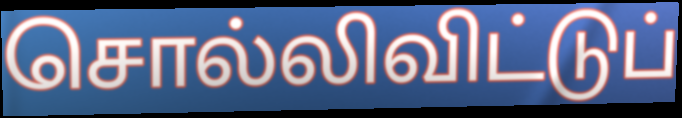
சொல்லிவிட்டுப்